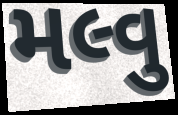
મલ્વુ